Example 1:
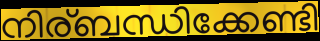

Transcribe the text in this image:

നിര്ബന്ധിക്കേണ്ടി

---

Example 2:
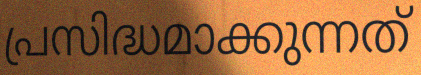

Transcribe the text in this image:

പ്രസിദ്ധമാക്കുന്നത്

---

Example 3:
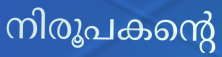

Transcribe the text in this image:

നിരൂപകന്റെ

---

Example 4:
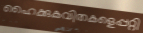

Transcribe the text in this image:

ഹൈക്കുകവിതകളെപ്പറ്റി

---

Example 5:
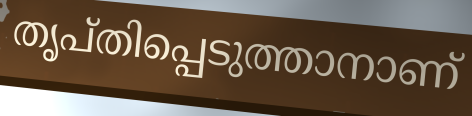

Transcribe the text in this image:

തൃപ്തിപ്പെടുത്താനാണ്